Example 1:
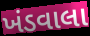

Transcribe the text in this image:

ખંડવાલા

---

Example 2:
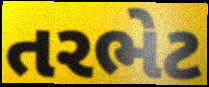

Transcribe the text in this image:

તરભેટ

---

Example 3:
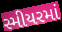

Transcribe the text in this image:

સ્મીયરમાં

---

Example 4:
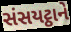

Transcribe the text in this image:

સંસયટ્ઠાને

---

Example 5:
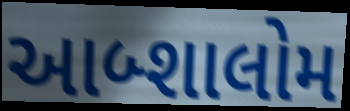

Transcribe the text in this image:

આબ્શાલોમ